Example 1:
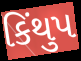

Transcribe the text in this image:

કિંથુપ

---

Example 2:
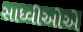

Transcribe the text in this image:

સાધ્વીઓએ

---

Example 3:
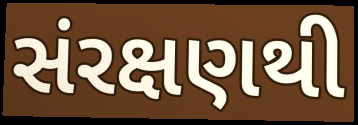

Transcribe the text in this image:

સંરક્ષણથી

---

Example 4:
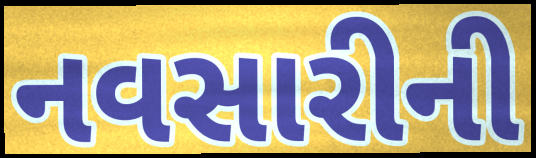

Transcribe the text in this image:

નવસારીની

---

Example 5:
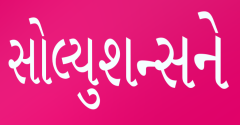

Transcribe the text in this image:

સોલ્યુશન્સને